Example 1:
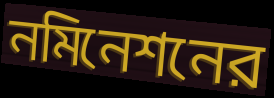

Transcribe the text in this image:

নমিনেশনের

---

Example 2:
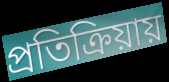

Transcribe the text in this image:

প্রতিক্রিয়ায়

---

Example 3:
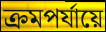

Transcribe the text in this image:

ক্রমপর্যায়ে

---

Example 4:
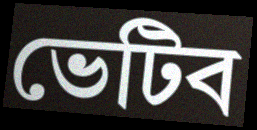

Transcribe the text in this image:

ভেটিব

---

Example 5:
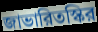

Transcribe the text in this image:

জাভারিতস্কির